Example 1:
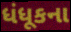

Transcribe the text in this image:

ધંધૂકના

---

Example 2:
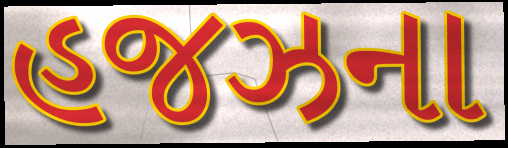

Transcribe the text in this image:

હજઝના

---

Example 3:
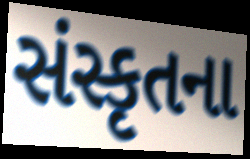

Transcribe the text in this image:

સંસ્કૃતના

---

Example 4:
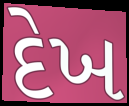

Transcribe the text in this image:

દેખ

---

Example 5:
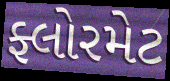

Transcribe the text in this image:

ફ્લોરમેટ